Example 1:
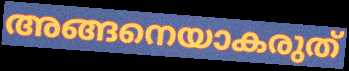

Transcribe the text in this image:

അങ്ങനെയാകരുത്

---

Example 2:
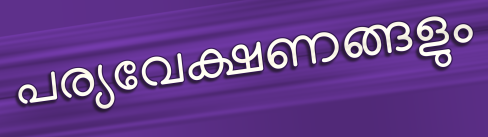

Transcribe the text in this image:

പര്യവേക്ഷണങ്ങളും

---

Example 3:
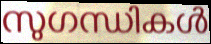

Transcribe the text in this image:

സുഗന്ധികൾ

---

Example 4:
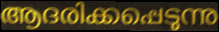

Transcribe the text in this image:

ആദരിക്കപ്പെടുന്നു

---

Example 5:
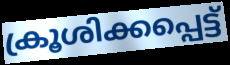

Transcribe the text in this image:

ക്രൂശിക്കപ്പെട്ട്